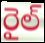
రైల్